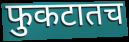
फुकटातच